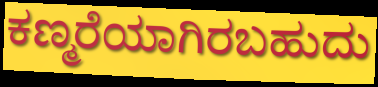
ಕಣ್ಮರೆಯಾಗಿರಬಹುದು